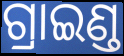
ଗ୍ରାଇଣ୍ଡ